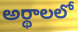
అర్థాలలో